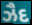
ઝૈદ